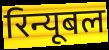
रिन्यूबल